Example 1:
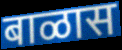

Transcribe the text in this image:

बाळास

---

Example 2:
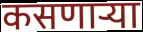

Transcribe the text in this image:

कसणाऱ्या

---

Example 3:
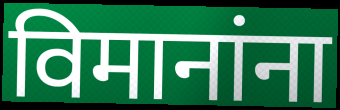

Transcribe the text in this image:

विमानांना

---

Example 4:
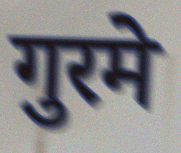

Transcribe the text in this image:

गुरमे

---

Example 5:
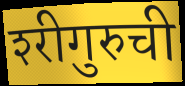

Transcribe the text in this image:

श्रीगुरुची